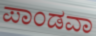
ಪಾಂಡವಾ